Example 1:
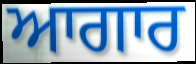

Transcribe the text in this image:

ਆਗਾਰ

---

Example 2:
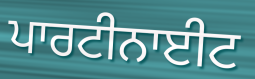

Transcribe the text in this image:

ਪਾਰਟੀਨਾਈਟ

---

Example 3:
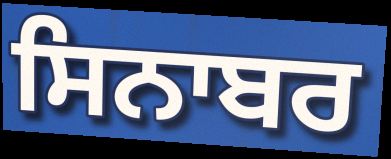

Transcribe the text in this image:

ਸਿਨਾਬਰ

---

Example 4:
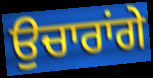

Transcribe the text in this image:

ਉਚਾਰਾਂਗੇ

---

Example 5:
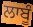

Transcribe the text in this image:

ਲਾਬੂੰ